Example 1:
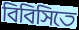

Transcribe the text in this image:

বিবিসিতে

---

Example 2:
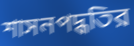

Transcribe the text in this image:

শাসনপদ্ধতির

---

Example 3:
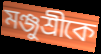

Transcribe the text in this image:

মঞ্জুশ্রীকে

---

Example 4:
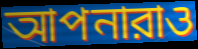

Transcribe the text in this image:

আপনারাও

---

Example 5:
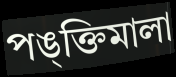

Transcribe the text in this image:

পঙ্‌ক্তিমালা